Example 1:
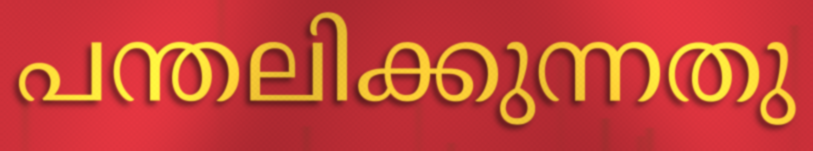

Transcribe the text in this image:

പന്തലിക്കുന്നതു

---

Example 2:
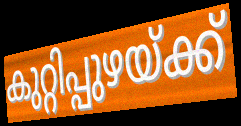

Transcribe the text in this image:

കുറ്റിപ്പുഴയ്ക്ക്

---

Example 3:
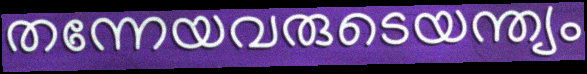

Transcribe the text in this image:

തന്നേയവരുടെയന്ത്യം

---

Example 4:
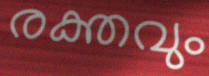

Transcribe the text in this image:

രക്തവും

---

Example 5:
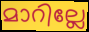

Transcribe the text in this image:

മാറില്ലേ